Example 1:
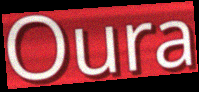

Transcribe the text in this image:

Oura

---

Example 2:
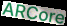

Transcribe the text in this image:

ARCore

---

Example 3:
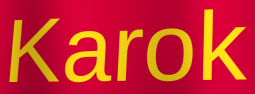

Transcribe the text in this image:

Karok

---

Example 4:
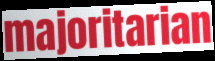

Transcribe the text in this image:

majoritarian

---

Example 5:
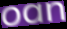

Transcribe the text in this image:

oan